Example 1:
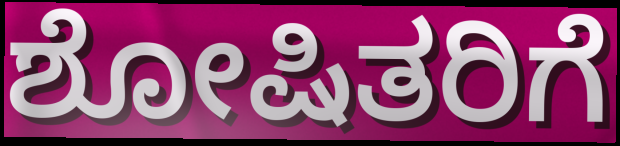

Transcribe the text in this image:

ಶೋಷಿತರಿಗೆ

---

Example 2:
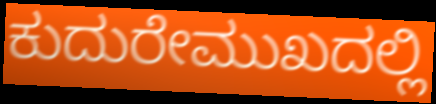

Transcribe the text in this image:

ಕುದುರೇಮುಖದಲ್ಲಿ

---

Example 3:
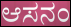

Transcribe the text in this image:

ಆಸನಂ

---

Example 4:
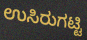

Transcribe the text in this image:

ಉಸಿರುಗಟ್ಟಿ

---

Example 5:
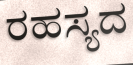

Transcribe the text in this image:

ರಹಸ್ಯದ